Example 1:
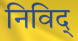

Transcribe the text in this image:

निविद्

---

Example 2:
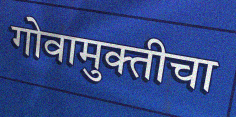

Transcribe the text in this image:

गोवामुक्तीचा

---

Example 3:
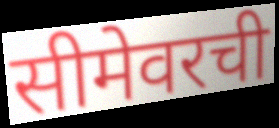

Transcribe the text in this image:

सीमेवरची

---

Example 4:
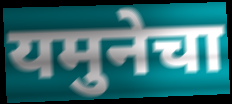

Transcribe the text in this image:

यमुनेचा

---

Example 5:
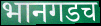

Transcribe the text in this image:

भानगडच